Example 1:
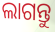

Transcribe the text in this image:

ଲାଗନ୍ତୁ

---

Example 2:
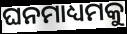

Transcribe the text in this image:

ଘନମାଧ୍ୟମକୁ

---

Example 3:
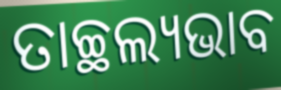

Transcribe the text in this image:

ତାଚ୍ଛଲ୍ୟଭାବ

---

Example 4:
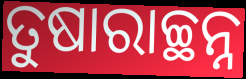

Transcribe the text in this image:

ତୁଷାରାଚ୍ଛନ୍ନ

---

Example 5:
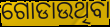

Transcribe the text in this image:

ଗୋଡାଉଥିବା